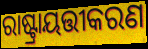
ରାଷ୍ଟ୍ରାୟତ୍ତୀକରଣ